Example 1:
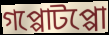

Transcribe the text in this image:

গপ্পোটপ্পো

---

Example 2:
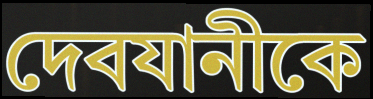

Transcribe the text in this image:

দেবযানীকে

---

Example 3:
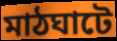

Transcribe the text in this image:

মাঠঘাটে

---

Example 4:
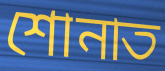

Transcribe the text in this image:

শোনাত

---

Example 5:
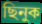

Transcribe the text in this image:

ছিনুক